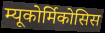
म्यूकोर्मिकोसिस